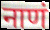
नाणं